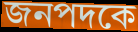
জনপদকে